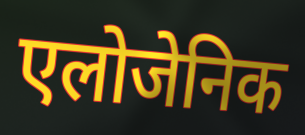
एलोजेनिक